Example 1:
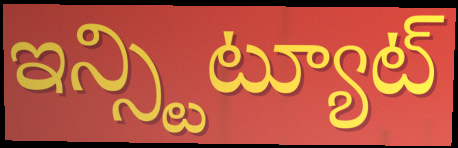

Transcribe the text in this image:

ఇన్స్టిట్యూట్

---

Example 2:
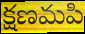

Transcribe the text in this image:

క్షణమపి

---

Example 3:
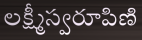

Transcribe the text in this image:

లక్ష్మీస్వరూపిణి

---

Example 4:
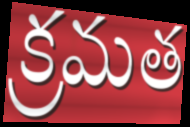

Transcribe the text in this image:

క్రమత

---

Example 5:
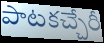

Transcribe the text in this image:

పాటకచ్చేరీ